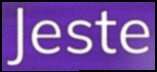
Jeste